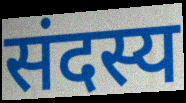
संदस्य